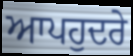
ਆਪਹੁਦਰੇ